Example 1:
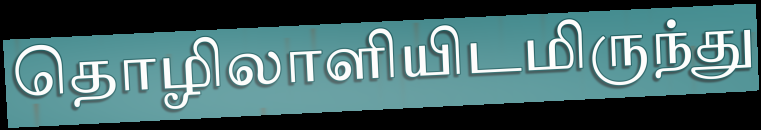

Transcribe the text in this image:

தொழிலாளியிடமிருந்து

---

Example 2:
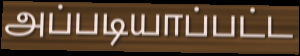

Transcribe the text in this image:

அப்படியாப்பட்ட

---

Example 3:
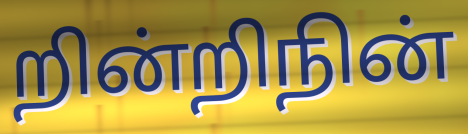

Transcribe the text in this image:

றின்றிநின்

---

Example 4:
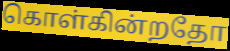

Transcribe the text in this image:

கொள்கின்றதோ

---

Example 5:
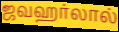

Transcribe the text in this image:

ஜவஹர்லால்